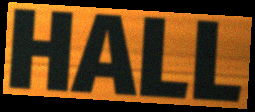
HALL